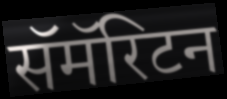
सॅमॅरिटन